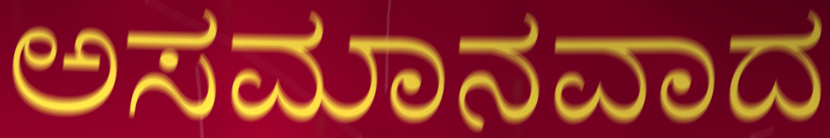
ಅಸಮಾನವಾದ